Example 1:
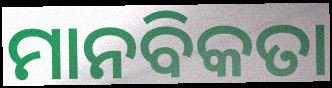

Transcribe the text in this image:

ମାନବିକତା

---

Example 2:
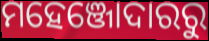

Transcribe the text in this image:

ମହେଞ୍ଜୋଦାରରୁ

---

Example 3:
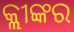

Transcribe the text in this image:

କ୍ଲୀଙ୍କର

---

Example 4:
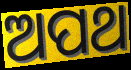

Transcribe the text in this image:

ଅପଥ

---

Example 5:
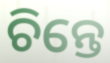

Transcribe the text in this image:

ଚିନ୍ତେ